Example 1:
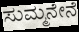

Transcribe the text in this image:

ಸುಮ್ಮನೇನೆ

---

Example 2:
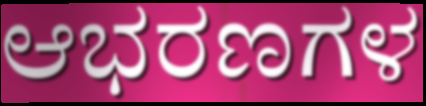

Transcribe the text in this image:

ಆಭರಣಗಳ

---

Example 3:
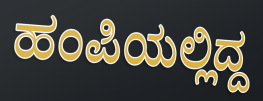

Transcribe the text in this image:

ಹಂಪಿಯಲ್ಲಿದ್ದ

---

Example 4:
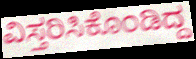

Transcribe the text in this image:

ವಿಸ್ತರಿಸಿಕೊಂಡಿದ್ದ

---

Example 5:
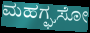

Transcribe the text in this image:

ಮಹಗ್ಘಸೋ